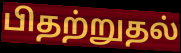
பிதற்றுதல்